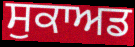
ਸੁਕਾਅਡ